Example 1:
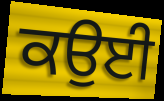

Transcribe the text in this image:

ਕਉਈ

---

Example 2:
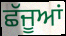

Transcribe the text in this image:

ਛੱਜੂਆਂ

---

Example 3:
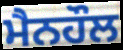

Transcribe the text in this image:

ਮੈਨਹੌਲ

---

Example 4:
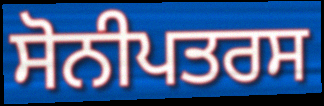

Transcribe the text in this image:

ਸੋਨੀਪਤਰਸ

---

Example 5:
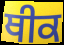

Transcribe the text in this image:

ਥੀਕ